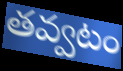
తవ్వటం